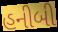
હનીબી